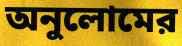
অনুলোমের